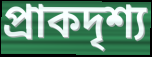
প্রাকদৃশ্য